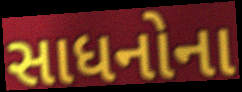
સાધનોના